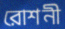
রোশনী